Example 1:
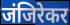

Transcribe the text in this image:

जंजिरेकर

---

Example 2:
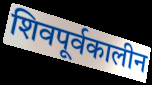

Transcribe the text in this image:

शिवपूर्वकालीन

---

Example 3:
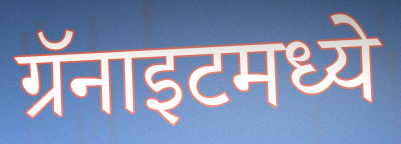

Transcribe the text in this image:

ग्रॅनाइटमध्ये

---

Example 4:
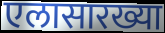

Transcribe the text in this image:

एलासारख्या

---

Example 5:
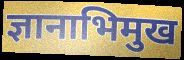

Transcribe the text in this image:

ज्ञानाभिमुख